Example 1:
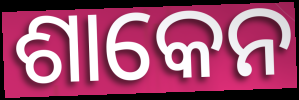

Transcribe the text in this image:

ଶାକେନ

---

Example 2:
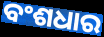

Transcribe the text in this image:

ବଂଶଧାର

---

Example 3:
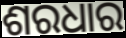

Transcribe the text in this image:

ଶରଧାର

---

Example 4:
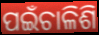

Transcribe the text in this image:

ପଇଁଚାଳିଶି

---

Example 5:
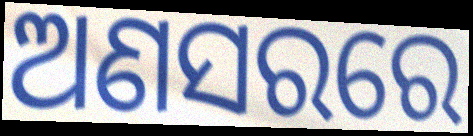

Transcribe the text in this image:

ଅଣସରରେ